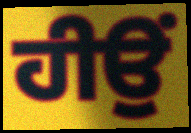
ਹੀਉਂ